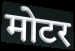
मोटर